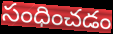
సంధించడం